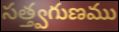
సత్త్వగుణము